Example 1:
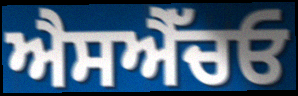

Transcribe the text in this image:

ਐਸਐੱਚਓ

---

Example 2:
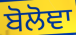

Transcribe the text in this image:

ਬੋਲੋਞਾ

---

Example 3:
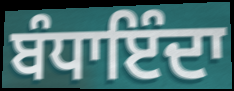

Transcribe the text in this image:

ਬੰਧਾਇੰਦਾ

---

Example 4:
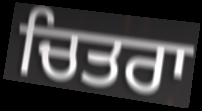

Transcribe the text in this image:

ਚਿਤਰਾ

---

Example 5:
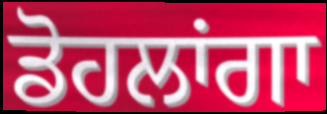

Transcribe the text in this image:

ਡੋਹਲਾਂਗਾ